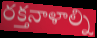
రక్తనాళాల్ని